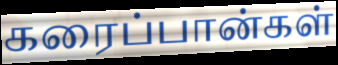
கரைப்பான்கள்